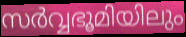
സർവ്വഭൂമിയിലും